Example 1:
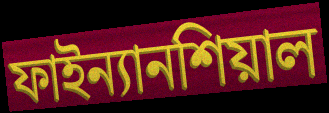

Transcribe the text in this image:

ফাইন্যানশিয়াল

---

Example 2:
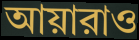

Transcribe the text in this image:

আয়ারাও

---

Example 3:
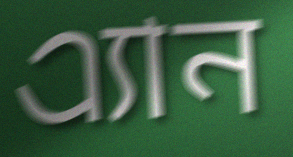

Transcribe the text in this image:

এ্যান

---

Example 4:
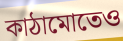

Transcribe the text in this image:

কাঠামোতেও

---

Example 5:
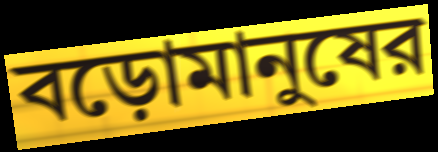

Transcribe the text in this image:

বড়োমানুষের